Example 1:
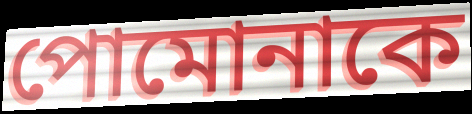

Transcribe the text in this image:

পোমোনাকে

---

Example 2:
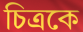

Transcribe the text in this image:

চিত্রকে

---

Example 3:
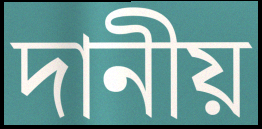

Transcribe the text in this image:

দানীয়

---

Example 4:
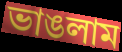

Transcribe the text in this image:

ভাঙলাম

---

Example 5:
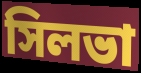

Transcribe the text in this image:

সিলভা